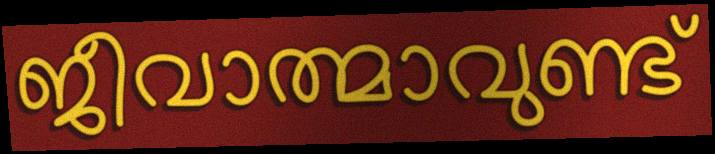
ജീവാത്മാവുണ്ട്